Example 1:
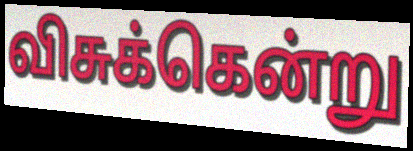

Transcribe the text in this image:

விசுக்கென்று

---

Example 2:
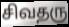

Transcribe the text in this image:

சிவதரு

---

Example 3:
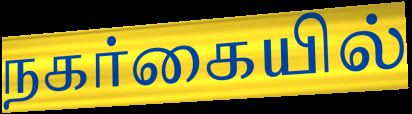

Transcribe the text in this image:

நகர்கையில்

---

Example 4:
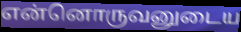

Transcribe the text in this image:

என்னொருவனுடைய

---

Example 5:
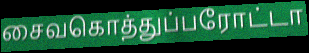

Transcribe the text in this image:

சைவகொத்துப்பரோட்டா